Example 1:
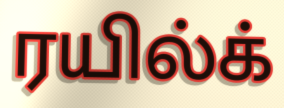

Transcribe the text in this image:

ரயில்க்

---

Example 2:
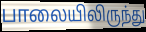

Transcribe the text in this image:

பாலையிலிருந்து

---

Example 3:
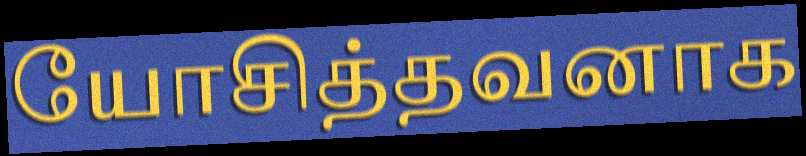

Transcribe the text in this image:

யோசித்தவனாக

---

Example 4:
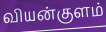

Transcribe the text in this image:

வியன்குளம்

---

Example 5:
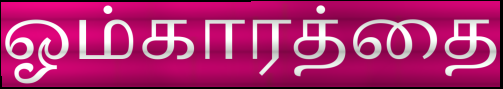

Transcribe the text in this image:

ஓம்காரத்தை